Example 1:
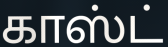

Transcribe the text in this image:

காஸ்ட்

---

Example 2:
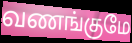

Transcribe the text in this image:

வணங்குமே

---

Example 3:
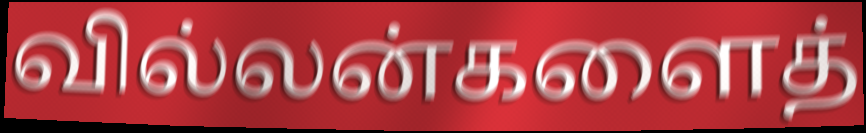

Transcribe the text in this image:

வில்லன்களைத்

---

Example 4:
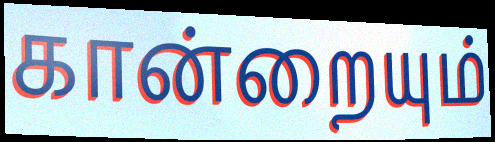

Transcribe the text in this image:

கான்றையும்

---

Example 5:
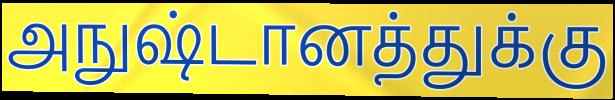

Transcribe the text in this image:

அநுஷ்டானத்துக்கு